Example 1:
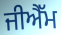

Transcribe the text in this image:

ਜੀਐੱਮ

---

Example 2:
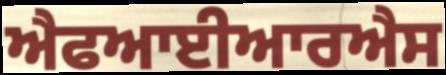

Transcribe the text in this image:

ਐਫਆਈਆਰਐਸ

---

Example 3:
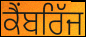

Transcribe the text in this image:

ਕੈਂਬਰਿੱਜ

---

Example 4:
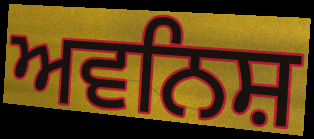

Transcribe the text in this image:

ਅਵਨਿਸ਼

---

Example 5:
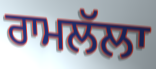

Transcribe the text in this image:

ਰਾਮਲੱਲਾ